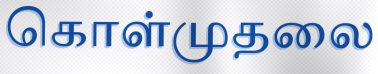
கொள்முதலை